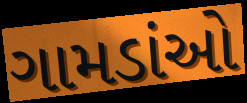
ગામડાંઓ